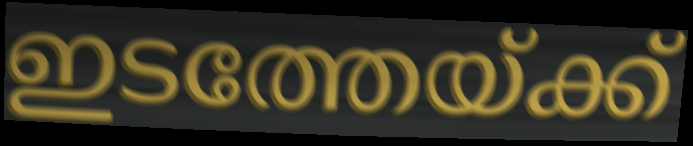
ഇടത്തേയ്ക്ക്